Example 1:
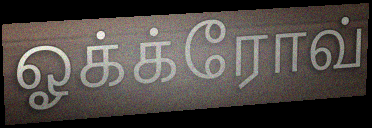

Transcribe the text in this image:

ஓக்க்ரோவ்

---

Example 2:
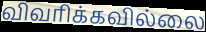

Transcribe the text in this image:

விவரிக்கவில்லை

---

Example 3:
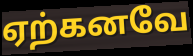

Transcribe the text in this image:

ஏற்கனவே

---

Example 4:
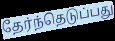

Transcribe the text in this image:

தேர்ந்தெடுப்பது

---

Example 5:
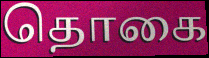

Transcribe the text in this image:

தொகை